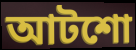
আটশো